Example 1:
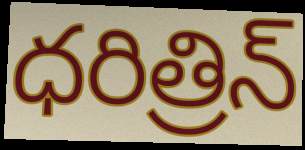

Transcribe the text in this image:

ధరిత్రిన్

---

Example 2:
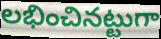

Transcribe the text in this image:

లభించినట్టుగా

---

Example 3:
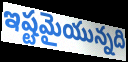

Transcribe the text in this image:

ఇష్టమైయున్నది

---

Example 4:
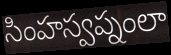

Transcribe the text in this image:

సింహస్వప్నంలా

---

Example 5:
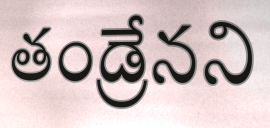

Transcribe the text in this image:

తండ్రేనని